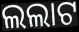
ଲଲାଟ